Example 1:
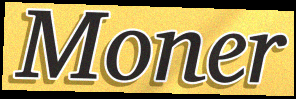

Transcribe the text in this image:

Moner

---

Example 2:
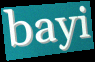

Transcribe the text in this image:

bayi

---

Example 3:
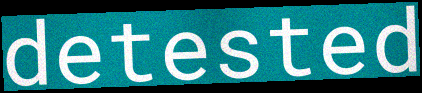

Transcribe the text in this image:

detested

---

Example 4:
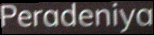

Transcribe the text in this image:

Peradeniya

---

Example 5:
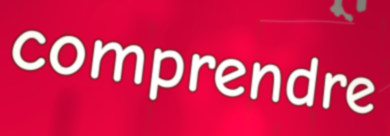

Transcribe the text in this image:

comprendre